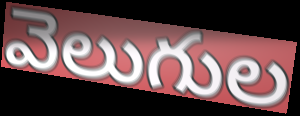
వెలుగుల